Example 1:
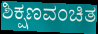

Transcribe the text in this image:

ಶಿಕ್ಷಣವಂಚಿತ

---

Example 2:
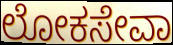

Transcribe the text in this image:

ಲೋಕಸೇವಾ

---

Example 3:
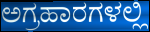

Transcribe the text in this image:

ಅಗ್ರಹಾರಗಳಲ್ಲಿ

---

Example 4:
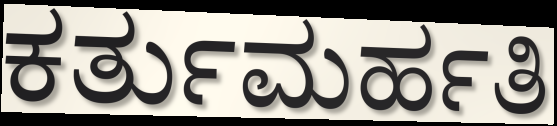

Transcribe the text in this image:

ಕರ್ತುಮರ್ಹತಿ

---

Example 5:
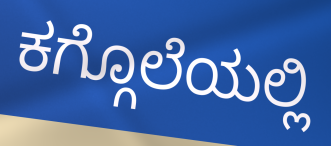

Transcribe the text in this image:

ಕಗ್ಗೊಲೆಯಲ್ಲಿ